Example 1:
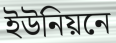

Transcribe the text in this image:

ইউনিয়নে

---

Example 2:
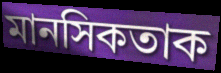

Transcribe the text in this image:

মানসিকতাক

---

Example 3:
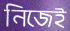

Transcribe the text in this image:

নিজেই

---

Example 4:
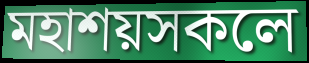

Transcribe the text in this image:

মহাশয়সকলে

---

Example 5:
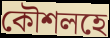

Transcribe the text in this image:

কৌশলহে